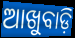
ଆଖୁବାଡ଼ି